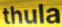
thula